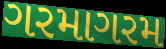
ગરમાગરમ